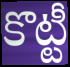
కొట్టీ